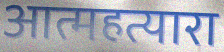
आत्महत्यारा